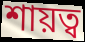
শায়ত্ব